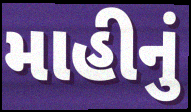
માહીનું